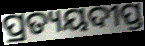
ପ୍ରତ୍ୟୟଦୀପ୍ତ